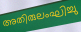
അതിരുലംഘിച്ചു